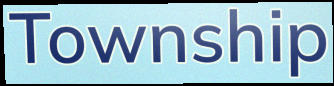
Township